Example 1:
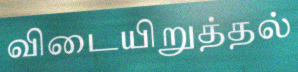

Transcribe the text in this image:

விடையிறுத்தல்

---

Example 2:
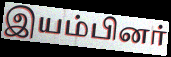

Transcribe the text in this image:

இயம்பினர்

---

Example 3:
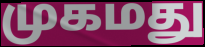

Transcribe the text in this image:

முகமது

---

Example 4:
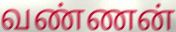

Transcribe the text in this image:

வண்ணன்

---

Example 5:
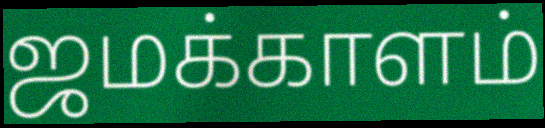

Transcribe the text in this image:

ஜமக்காளம்